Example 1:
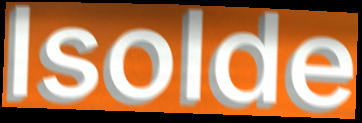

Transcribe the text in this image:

Isolde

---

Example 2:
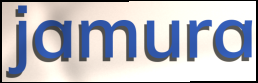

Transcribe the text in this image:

jamura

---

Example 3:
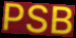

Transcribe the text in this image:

PSB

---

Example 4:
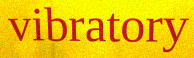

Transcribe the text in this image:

vibratory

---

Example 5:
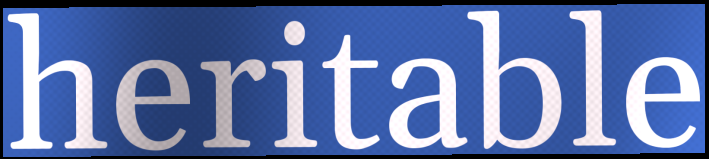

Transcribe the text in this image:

heritable